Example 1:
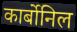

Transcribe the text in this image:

कार्बोनिल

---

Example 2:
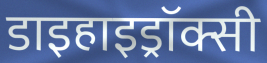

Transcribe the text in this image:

डाइहाइड्रॉक्सी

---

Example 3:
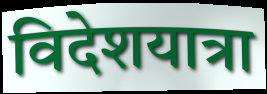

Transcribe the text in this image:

विदेशयात्रा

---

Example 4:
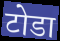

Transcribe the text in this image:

टोडा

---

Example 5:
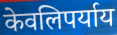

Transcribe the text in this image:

केवलिपर्याय